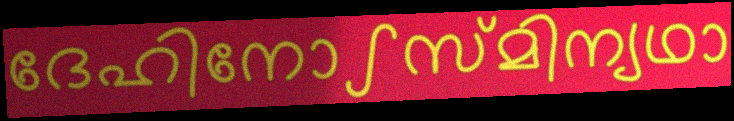
ദേഹിനോഽസ്മിന്യഥാ